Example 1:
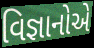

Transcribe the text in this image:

વિજ્ઞાનોએ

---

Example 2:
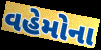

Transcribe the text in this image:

વહેમોના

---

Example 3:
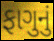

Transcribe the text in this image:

ફાગુનું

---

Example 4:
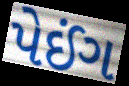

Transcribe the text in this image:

પેઈંગ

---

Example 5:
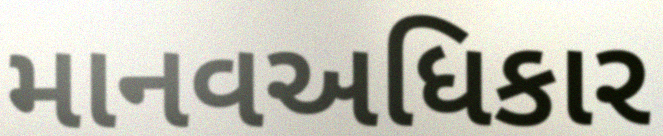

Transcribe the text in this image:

માનવઅધિકાર